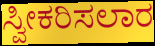
ಸ್ವೀಕರಿಸಲಾರ